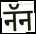
नॅन